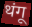
थंगू